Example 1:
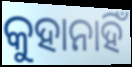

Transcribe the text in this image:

କୁହାନାହିଁ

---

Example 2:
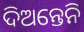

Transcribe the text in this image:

ଦିଅନ୍ତେନି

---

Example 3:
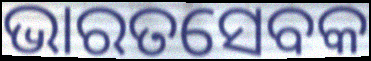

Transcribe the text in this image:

ଭାରତସେବକ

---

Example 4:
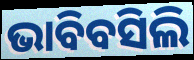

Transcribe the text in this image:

ଭାବିବସିଲି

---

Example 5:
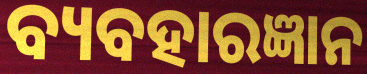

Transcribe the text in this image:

ବ୍ୟବହାରଜ୍ଞାନ